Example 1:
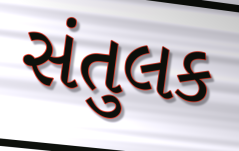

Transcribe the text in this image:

સંતુલક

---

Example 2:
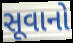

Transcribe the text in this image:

સૂવાનો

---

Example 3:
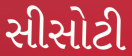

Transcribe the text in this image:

સીસોટી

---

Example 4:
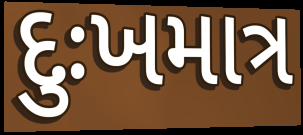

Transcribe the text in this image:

દુઃખમાત્ર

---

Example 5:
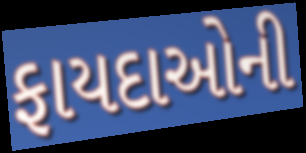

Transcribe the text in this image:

ફાયદાઓની